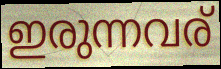
ഇരുന്നവര്